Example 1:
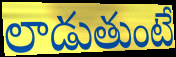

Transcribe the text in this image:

లాడుతుంటే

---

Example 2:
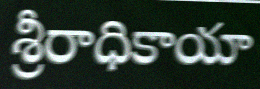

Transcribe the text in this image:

శ్రీరాధికాయా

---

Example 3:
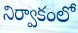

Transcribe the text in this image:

నిర్వాకంలో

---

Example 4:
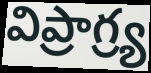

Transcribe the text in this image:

విప్రాగ్ర్య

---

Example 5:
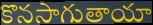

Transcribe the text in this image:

కొనసాగుతాయా